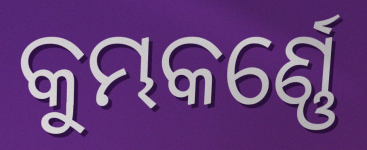
କୁମ୍ଭକର୍ଣ୍ଣେ